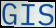
GIS